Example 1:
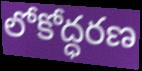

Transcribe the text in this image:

లోకోద్ధరణ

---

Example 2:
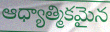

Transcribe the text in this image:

ఆధ్యాత్మికమైన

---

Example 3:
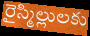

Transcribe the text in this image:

రైస్మిల్లులకు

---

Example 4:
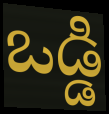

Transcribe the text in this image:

ఒడ్డి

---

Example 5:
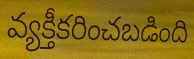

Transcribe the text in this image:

వ్యక్తీకరించబడింది